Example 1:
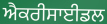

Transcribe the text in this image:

ਐਕਰੀਸਾਈਡਲ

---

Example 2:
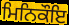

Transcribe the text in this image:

ਮਿਨਿਕੌਇ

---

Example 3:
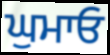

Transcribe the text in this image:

ਘੁਮਾਓ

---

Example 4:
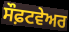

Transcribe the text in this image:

ਸੌਫ਼ਟਵੇਅਰ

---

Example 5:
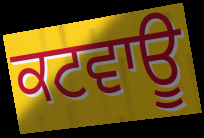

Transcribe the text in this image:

ਕਟਵਾਊ